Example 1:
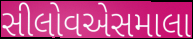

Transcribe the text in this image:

સીલોવએસમાલા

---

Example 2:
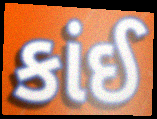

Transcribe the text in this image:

કાંઈ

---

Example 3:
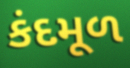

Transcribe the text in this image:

કંદમૂળ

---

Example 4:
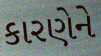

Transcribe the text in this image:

કારણેને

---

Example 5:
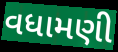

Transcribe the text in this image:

વધામણી